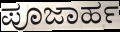
ಪೂಜಾರ್ಹ